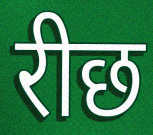
रीछ